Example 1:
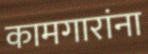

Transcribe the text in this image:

कामगारांना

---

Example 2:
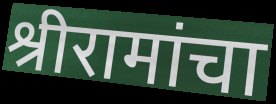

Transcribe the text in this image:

श्रीरामांचा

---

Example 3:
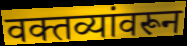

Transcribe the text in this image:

वक्तव्यांवरून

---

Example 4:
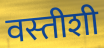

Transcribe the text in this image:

वस्‍तीशी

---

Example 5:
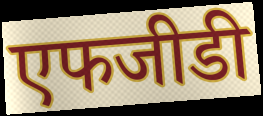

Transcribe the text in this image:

एफजीडी